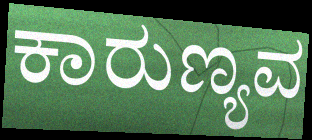
ಕಾರುಣ್ಯವ